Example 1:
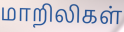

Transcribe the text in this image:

மாறிலிகள்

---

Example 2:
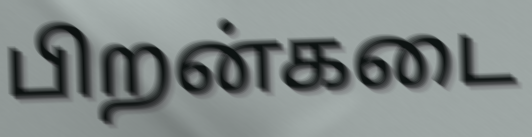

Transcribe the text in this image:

பிறன்கடை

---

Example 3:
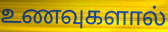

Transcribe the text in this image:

உணவுகளால்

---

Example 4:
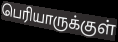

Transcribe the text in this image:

பெரியாருக்குள்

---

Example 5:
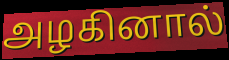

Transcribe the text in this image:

அழகினால்